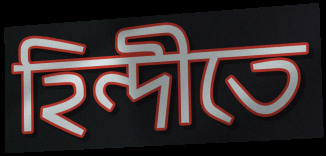
হিন্দীতে